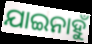
ଯାଇନାହୁଁ